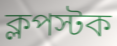
ক্লপস্টক